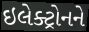
ઇલેક્ટ્રોનને